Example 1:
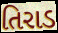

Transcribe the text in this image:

તિરાડ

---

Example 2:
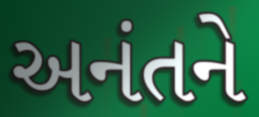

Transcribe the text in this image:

અનંતને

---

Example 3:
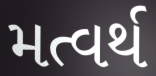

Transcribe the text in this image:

મત્વર્થ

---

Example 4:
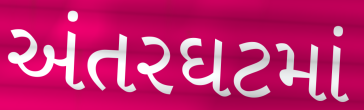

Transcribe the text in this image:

અંતરઘટમાં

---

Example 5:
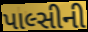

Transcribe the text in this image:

પાલ્સીની